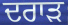
ਦਰਾੜ